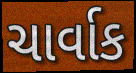
ચાર્વાક